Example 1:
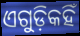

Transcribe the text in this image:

ଏଗୁଡ଼ିକହିଁ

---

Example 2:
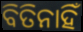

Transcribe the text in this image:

ବିତିନାହିଁ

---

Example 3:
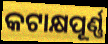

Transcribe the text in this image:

କଟାକ୍ଷପୂର୍ଣ୍ଣ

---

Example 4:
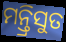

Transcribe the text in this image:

ମନ୍ତ୍ରିସୁତ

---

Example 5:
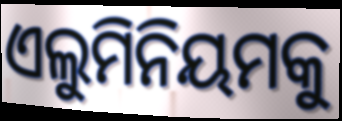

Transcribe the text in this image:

ଏଲୁମିନିୟମକୁ